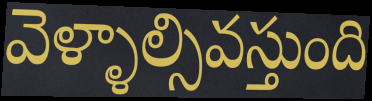
వెళ్ళాల్సివస్తుంది